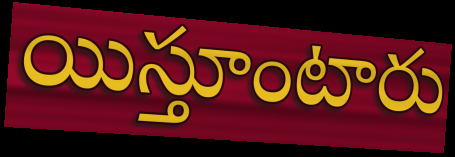
యిస్తూంటారు